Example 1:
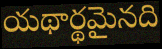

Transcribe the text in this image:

యథార్థమైనది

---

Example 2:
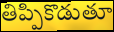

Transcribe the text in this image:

తిప్పికొడుతూ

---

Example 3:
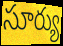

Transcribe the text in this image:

సూర్యు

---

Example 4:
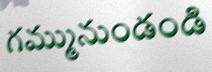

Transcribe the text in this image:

గమ్మునుండండి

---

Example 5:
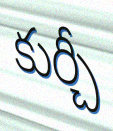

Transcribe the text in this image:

కుర్చీ